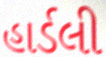
હાર્ડલી